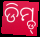
ଡିମ୍ଡ୍